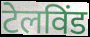
टेलविंड